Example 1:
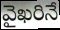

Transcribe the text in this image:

వైఖరినే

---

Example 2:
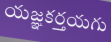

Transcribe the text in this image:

యజ్ఞకర్తయగు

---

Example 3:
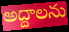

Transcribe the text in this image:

అద్దాలను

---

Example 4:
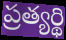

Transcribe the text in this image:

ప్రత్యర్థి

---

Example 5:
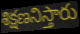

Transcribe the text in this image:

శిక్షణనిస్తారు